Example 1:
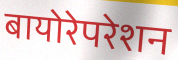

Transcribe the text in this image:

बायोरेपरेशन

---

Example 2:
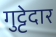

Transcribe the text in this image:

गुट्टेदार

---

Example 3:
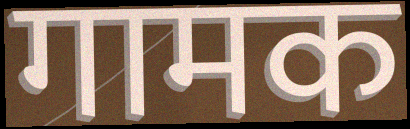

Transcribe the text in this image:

गामक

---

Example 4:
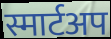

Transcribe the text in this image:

स्मार्टअप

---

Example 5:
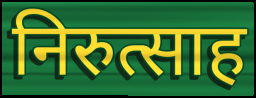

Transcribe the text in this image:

निरुत्साह